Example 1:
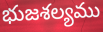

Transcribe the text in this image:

భుజశల్యము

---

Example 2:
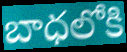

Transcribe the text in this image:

బాధలోకి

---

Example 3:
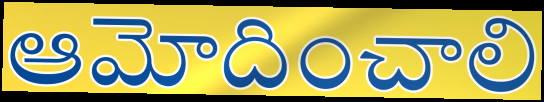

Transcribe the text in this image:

ఆమోదించాలి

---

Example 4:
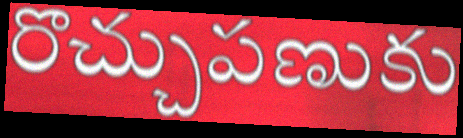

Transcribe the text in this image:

రొచ్చుపణుకు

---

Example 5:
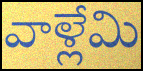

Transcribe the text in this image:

వాళ్లేమి